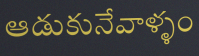
ఆడుకునేవాళ్ళం